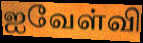
ஐவேள்வி